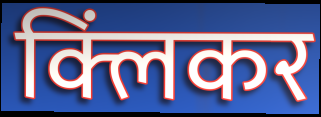
क्लिंकर